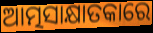
ଆତ୍ମସାକ୍ଷାତକାରେ